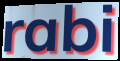
rabi